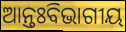
ଆନ୍ତଃବିଭାଗୀୟ